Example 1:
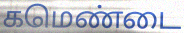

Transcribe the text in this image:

கமெண்டை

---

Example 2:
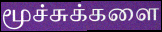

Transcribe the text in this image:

மூச்சுக்களை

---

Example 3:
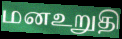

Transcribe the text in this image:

மனஉறுதி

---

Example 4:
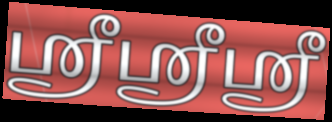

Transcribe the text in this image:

ஸ்ரீஸ்ரீஸ்ரீ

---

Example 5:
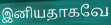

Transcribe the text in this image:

இனியதாகவே